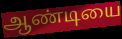
ஆண்டியை